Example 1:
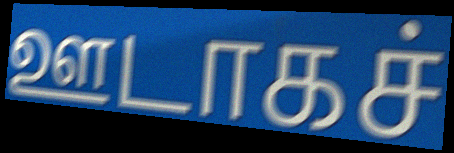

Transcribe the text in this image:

ஊடாகச்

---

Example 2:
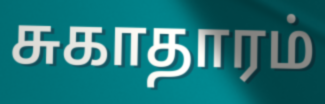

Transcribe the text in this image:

சுகாதாரம்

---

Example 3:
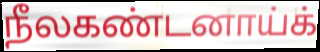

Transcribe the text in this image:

நீலகண்டனாய்க்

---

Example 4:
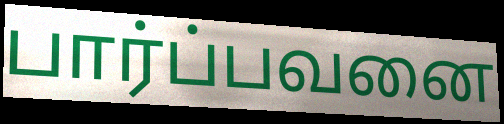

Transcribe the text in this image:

பார்ப்பவனை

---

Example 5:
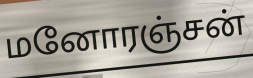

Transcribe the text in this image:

மனோரஞ்சன்